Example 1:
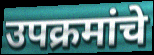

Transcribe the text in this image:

उपक्रमांचे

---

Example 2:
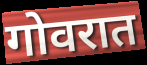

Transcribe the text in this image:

गोवरात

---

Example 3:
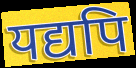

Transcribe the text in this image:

यद्यपि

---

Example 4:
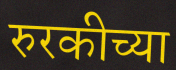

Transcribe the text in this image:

रुरकीच्या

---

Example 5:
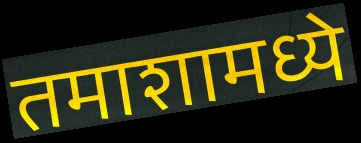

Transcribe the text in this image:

तमाशामध्ये